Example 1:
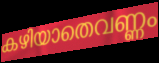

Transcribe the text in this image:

കഴിയാതെവണ്ണം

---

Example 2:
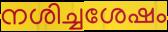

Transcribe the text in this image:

നശിച്ചശേഷം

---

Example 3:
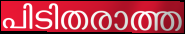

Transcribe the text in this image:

പിടിതരാത്ത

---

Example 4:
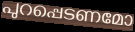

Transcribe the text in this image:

പുറപ്പെടണമോ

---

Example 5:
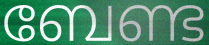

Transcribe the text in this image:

ബേണ്ട